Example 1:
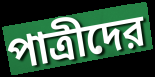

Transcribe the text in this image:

পাত্রীদের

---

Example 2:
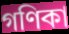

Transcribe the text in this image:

গণিকা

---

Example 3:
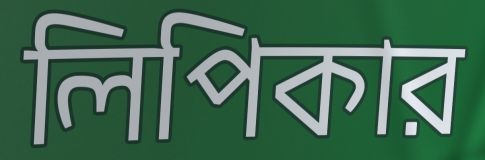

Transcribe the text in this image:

লিপিকার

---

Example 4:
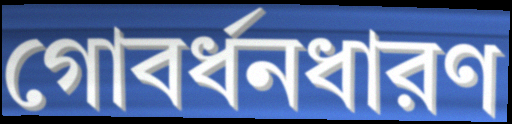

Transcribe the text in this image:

গোবর্ধনধারণ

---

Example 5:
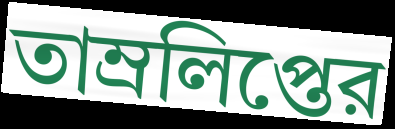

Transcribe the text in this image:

তাম্রলিপ্তের